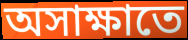
অসাক্ষাতে